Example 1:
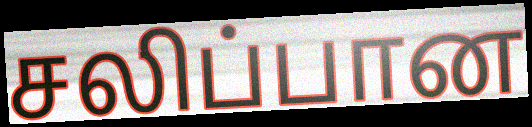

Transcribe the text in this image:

சலிப்பான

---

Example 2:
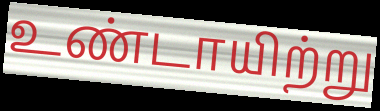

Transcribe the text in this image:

உண்டாயிற்று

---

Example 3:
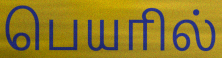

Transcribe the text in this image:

பெயரில்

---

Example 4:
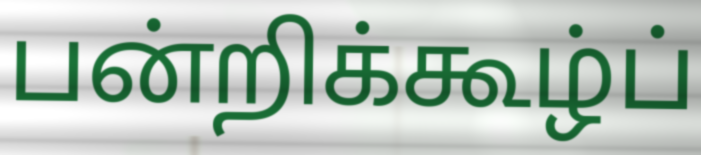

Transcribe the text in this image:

பன்றிக்கூழ்ப்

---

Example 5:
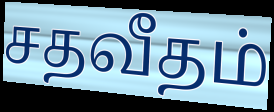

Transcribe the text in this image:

சதவீதம்